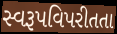
સ્વરૂપવિપરીતતા